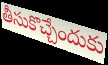
తీసుకొచ్చేందుకు